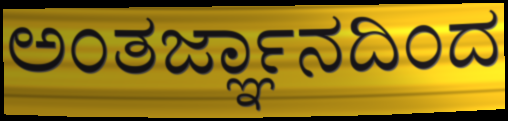
ಅಂತರ್ಜ್ಞಾನದಿಂದ